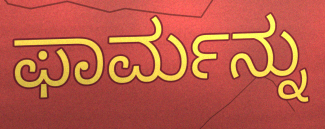
ಫಾರ್ಮನ್ನು